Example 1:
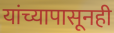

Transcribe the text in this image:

यांच्यापासूनही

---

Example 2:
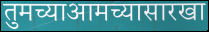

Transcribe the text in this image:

तुमच्याआमच्यासारखा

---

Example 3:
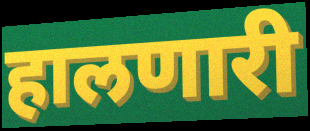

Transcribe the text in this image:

हालणारी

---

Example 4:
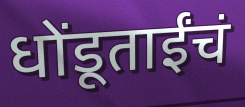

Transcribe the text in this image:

धोंडूताईंचं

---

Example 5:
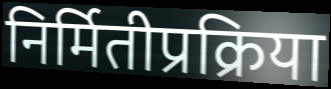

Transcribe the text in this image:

निर्मितीप्रक्रिया